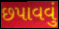
છપાવવું